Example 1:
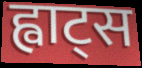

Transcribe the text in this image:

ह्वाट्स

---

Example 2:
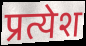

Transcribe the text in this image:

प्रत्येश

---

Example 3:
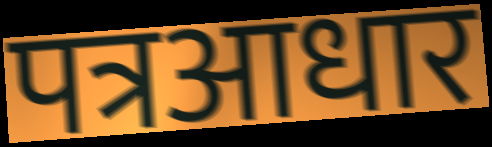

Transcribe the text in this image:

पत्रआधार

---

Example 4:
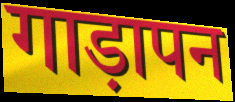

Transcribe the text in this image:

गाड़ापन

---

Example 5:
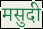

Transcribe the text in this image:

मसुदी